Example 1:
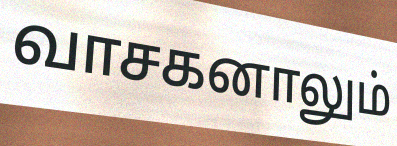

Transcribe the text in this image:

வாசகனாலும்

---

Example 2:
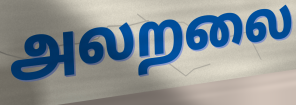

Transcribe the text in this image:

அலறலை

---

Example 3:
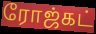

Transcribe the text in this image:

ரோஜ்கட்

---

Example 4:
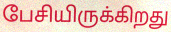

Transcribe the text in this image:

பேசியிருக்கிறது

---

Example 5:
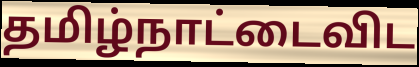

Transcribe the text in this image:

தமிழ்நாட்டைவிட